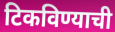
टिकविण्याची